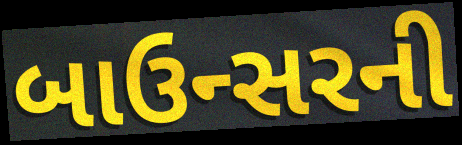
બાઉન્સરની